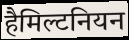
हैमिल्टनियन